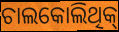
ଚାଲକୋଲିଥିକ୍